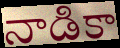
నాడికా